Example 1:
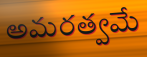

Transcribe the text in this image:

అమరత్వమే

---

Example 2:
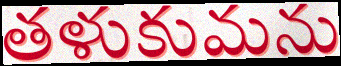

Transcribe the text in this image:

తళుకుమను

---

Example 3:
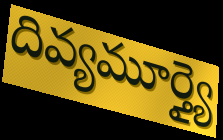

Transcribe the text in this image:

దివ్యమూర్త్యై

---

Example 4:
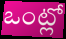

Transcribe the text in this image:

ఒంట్లో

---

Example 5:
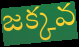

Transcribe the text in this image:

జక్కవ